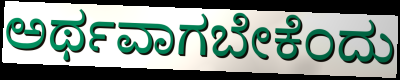
ಅರ್ಥವಾಗಬೇಕೆಂದು